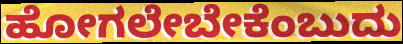
ಹೋಗಲೇಬೇಕೆಂಬುದು